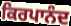
ਕਿਰਪਾਨੰਦ